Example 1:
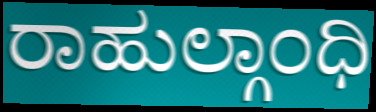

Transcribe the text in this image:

ರಾಹುಲ್ಗಾಂಧಿ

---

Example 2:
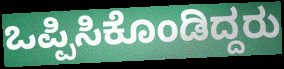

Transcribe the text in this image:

ಒಪ್ಪಿಸಿಕೊಂಡಿದ್ದರು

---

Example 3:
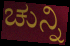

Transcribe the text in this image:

ಚುನ್ನಿ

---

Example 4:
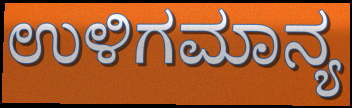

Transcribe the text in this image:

ಉಳಿಗಮಾನ್ಯ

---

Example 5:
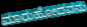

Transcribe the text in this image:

ಮಾರುಹೋದವನು